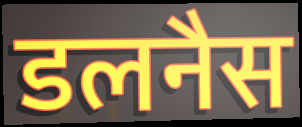
डलनैस